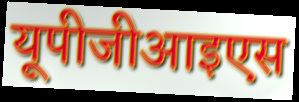
यूपीजीआइएस